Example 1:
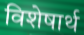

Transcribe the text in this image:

विशेषार्थ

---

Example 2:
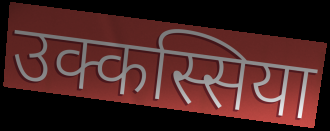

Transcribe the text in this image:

उक्कस्सिया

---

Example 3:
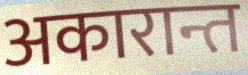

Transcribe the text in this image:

अकारान्त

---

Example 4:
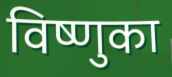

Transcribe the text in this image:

विष्णुका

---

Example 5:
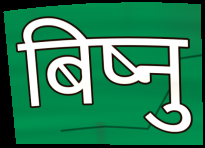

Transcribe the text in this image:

बिष्नु